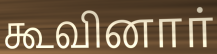
கூவினார்